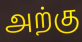
அற்கு